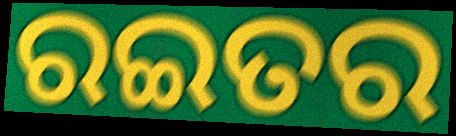
ରଇତର